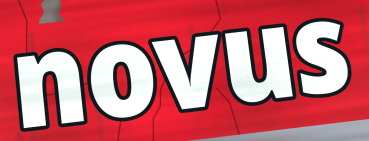
novus